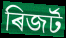
ৰিজৰ্ট